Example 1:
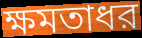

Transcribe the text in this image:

ক্ষমতাধর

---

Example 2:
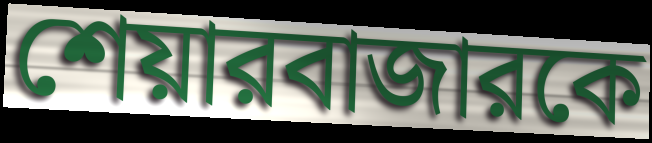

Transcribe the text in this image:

শেয়ারবাজারকে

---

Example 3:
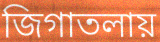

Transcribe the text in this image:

জিগাতলায়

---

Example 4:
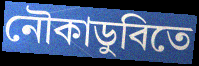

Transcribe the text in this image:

নৌকাডুবিতে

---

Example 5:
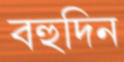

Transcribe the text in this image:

বহুদিন